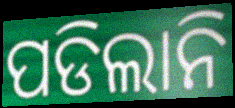
ପଡିଲାନି